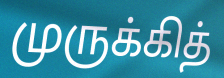
முருக்கித்